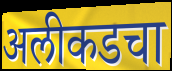
अलीकडचा